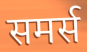
समर्स